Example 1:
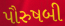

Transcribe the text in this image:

પૌરુષબી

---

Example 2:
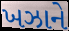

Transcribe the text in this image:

ખઝાને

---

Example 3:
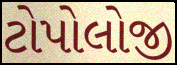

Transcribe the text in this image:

ટોપોલોજી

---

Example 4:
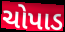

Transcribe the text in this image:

ચોપાડ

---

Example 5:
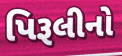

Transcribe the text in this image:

પિરૂલીનો